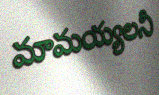
మామయ్యలనీ